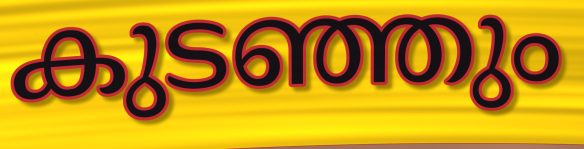
കുടഞ്ഞും